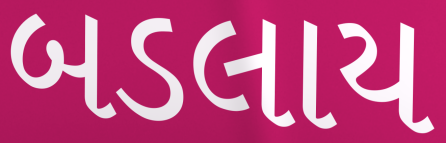
બડલાય